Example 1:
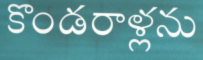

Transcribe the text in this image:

కొండరాళ్లను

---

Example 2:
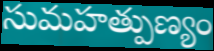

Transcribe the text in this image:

సుమహత్పుణ్యం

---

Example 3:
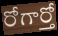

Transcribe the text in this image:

రోగార్తో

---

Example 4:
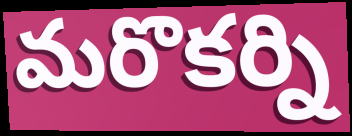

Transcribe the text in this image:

మరొకర్ని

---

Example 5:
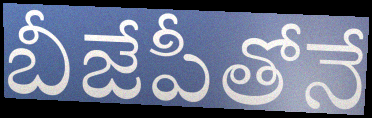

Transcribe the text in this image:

బీజేపీతోనే